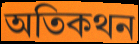
অতিকথন